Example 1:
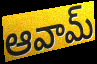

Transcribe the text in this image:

ఆవామ్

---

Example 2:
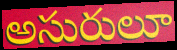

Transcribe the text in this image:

అసురులూ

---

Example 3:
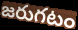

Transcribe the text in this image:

జరుగటం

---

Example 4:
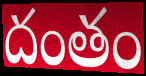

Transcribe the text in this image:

దంతం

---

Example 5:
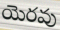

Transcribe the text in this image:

యెరవు